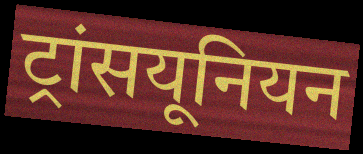
ट्रांसयूनियन